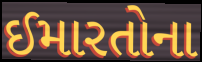
ઈમારતોના